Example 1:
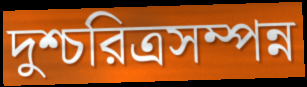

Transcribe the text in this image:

দুশ্চরিত্রসম্পন্ন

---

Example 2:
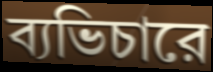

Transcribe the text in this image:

ব্যভিচারে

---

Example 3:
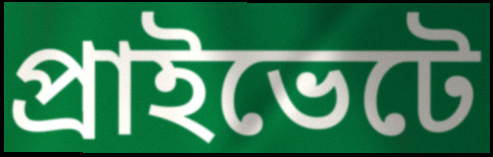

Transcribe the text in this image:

প্রাইভেটে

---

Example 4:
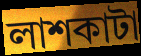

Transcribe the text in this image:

লাশকাটা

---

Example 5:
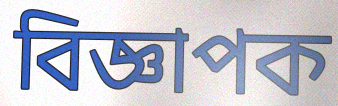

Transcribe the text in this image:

বিজ্ঞাপক